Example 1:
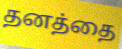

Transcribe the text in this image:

தனத்தை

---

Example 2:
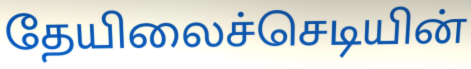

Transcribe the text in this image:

தேயிலைச்செடியின்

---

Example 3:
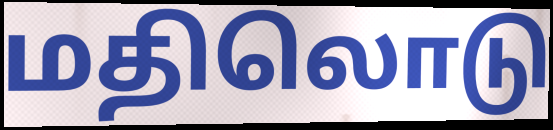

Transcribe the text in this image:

மதிலொடு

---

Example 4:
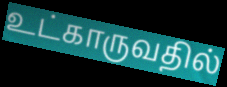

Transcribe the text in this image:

உட்காருவதில்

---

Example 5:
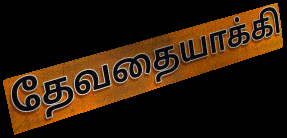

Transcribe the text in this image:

தேவதையாக்கி